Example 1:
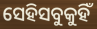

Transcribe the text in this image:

ସେହିସବୁକୁହିଁ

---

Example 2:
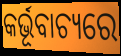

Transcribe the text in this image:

କର୍ଭୂବାଚ୍ୟରେ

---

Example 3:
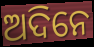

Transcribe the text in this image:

ଅଦିନେ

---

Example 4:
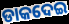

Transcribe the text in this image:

ଡାକଦେଇ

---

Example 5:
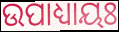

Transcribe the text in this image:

ଉପାଧ୍ୟାୟଃ